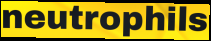
neutrophils